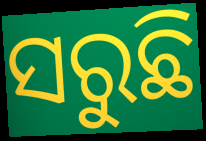
ସରୁଛି